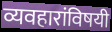
व्यवहारांविषयी